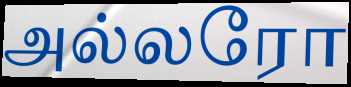
அல்லரோ